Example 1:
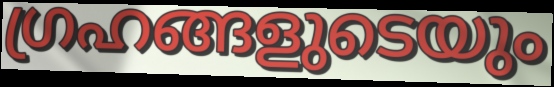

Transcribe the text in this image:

ഗ്രഹങ്ങളുടെയും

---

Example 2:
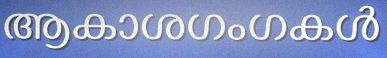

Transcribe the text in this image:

ആകാശഗംഗകൾ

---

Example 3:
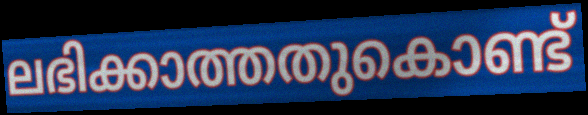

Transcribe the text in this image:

ലഭിക്കാത്തതുകൊണ്ട്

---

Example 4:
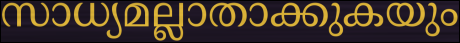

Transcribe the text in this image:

സാധ്യമല്ലാതാക്കുകയും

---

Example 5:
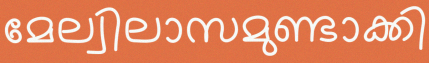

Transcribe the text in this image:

മേല്വിലാസമുണ്ടാക്കി